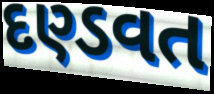
દણ્ડવત